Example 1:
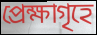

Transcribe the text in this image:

প্রেক্ষাগৃহে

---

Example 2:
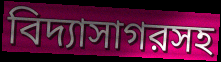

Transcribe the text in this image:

বিদ্যাসাগরসহ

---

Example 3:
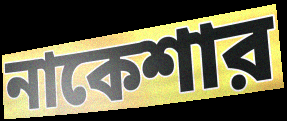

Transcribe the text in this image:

নাকেশার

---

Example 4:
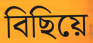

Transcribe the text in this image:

বিছিয়ে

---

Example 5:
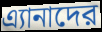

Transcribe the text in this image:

এ্যানাদের